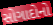
સોગાદોનો